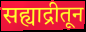
सह्याद्रीतून